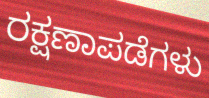
ರಕ್ಷಣಾಪಡೆಗಳು